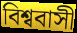
বিশ্ববাসী